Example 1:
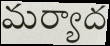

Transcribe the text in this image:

మర్యాద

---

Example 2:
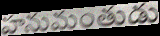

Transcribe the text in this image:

హనుమంతుడు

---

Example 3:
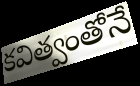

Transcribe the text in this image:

కవిత్వంతోనే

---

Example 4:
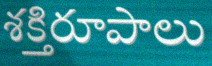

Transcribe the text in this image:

శక్తిరూపాలు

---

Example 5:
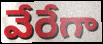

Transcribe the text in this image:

వేరేగా